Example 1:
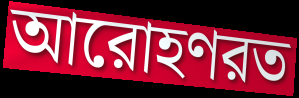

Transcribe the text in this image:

আরোহণরত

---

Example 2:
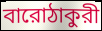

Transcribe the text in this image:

বারোঠাকুরী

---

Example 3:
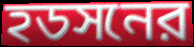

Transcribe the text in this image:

হডসনের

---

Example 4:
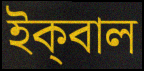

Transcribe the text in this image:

ইক্‌বাল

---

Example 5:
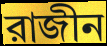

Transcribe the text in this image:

রাজীন